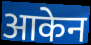
आकेन